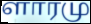
ளாரமு